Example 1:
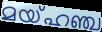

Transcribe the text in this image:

മയ്ഹഞ്ച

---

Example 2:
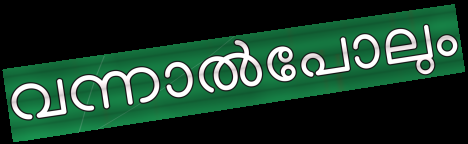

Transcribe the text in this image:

വന്നാൽപോലും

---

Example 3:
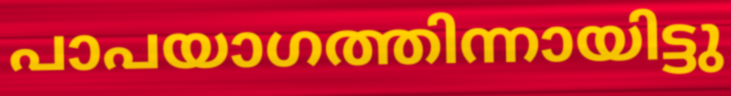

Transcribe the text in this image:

പാപയാഗത്തിന്നായിട്ടു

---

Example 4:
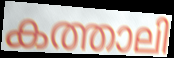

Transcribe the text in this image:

കത്താലി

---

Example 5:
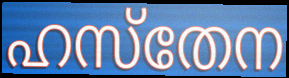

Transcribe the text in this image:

ഹസ്തേന